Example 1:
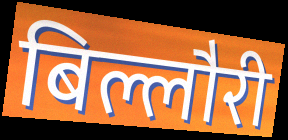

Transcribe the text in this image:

बिल्लौरी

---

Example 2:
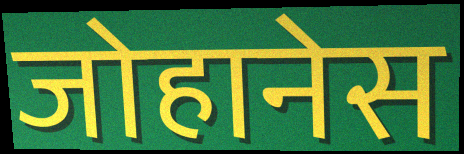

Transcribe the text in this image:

जोहानेस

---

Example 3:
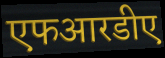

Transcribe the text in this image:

एफआरडीए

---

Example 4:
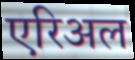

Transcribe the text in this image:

एरिअल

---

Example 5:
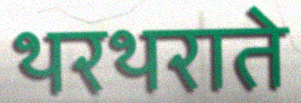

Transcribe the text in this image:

थरथराते